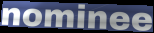
nominee